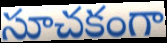
సూచకంగా